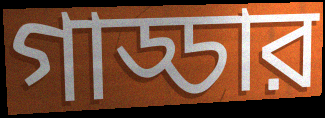
গাড্ডার